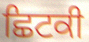
ਛਿਟਕੀ